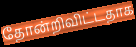
தோன்றிவிட்டதாக